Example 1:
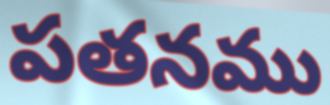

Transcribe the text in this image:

పతనము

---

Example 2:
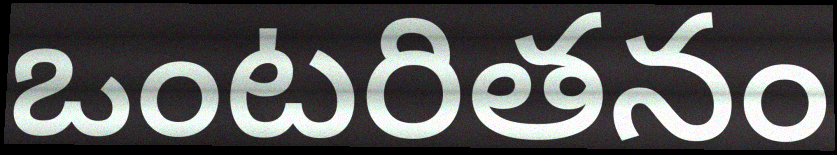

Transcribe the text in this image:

ఒంటరితనం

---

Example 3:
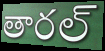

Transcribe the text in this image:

తారల్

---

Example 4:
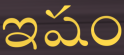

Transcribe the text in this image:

ఇషం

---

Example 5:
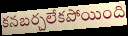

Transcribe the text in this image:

కనబర్చలేకపోయింది